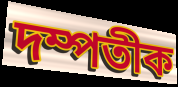
দম্পতীক